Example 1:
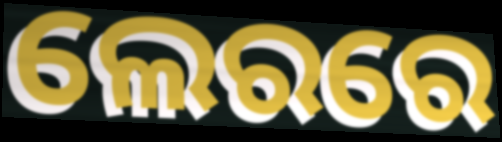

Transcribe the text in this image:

ଲେରରେ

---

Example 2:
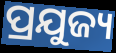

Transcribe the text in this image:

ପ୍ରଯୁଜ୍ୟ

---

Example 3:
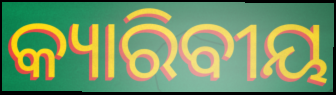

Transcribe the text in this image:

କ୍ୟାରିବୀୟ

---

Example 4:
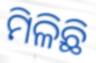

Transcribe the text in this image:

ମିଳିଛି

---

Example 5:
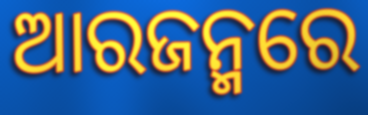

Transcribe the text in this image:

ଆରଜନ୍ମରେ